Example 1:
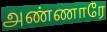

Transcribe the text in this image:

அண்ணாரே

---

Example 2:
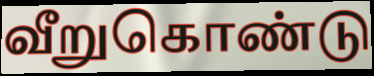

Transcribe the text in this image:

வீறுகொண்டு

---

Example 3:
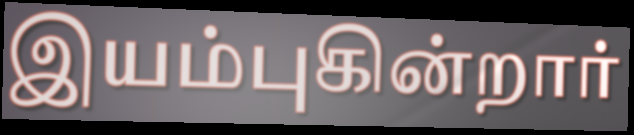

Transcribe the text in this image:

இயம்புகின்றார்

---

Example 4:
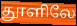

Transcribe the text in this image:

தூளிலே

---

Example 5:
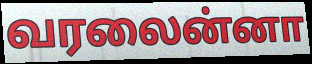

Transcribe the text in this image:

வரலைன்னா